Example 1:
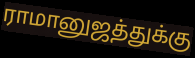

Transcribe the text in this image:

ராமானுஜத்துக்கு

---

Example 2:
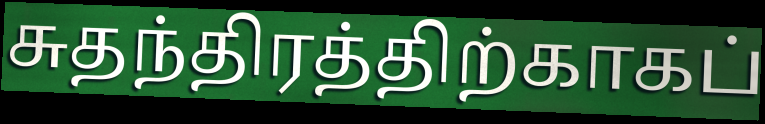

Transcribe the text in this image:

சுதந்திரத்திற்காகப்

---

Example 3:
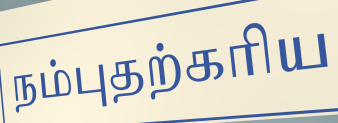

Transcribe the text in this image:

நம்புதற்கரிய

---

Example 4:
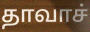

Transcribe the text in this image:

தாவாச்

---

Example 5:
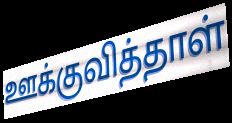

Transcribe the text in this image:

ஊக்குவித்தாள்